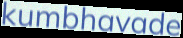
kumbhavade